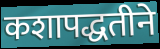
कशापद्धतीने